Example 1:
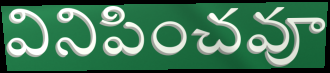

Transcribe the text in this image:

వినిపించవూ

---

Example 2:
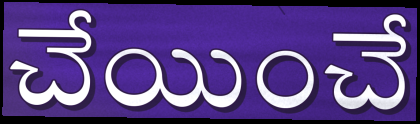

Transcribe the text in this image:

చేయించే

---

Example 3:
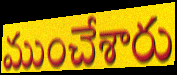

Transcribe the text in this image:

ముంచేశారు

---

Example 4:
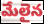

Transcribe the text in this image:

మేలైన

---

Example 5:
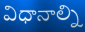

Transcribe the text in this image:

విధానాల్ని